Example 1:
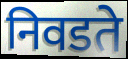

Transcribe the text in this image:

निवडते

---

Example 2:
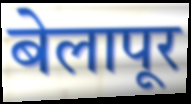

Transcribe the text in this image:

बेलापूर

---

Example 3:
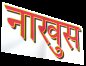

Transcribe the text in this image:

नाखुस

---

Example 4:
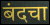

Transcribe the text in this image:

बंदचा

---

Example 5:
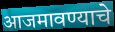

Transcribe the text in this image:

आजमावण्याचे